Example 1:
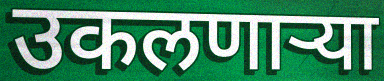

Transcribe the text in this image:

उकलणाऱ्या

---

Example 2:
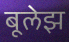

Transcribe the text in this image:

बूलेझ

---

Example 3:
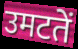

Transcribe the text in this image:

उमटतें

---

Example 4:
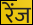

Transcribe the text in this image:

रेंज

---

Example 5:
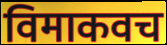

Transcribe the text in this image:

विमाकवच